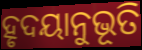
ହୃଦୟାନୁଭୂତି